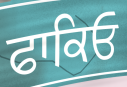
ਫਾਕਿਓ